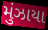
મુંઝાયા